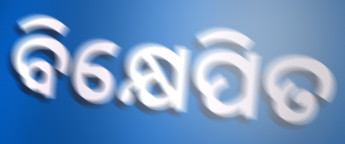
ବିକ୍ଷେପିତ